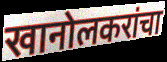
खानोलकरांचा